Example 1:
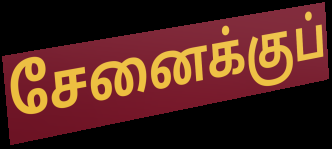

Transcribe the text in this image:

சேனைக்குப்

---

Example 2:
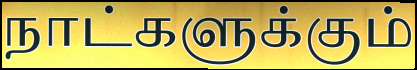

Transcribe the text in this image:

நாட்களுக்கும்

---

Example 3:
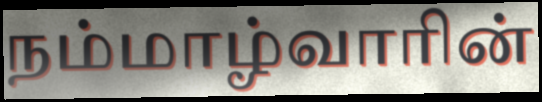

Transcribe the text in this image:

நம்மாழ்வாரின்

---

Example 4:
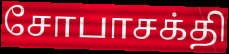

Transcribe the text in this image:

சோபாசக்தி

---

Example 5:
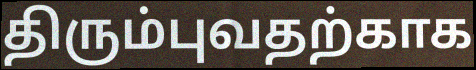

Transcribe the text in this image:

திரும்புவதற்காக